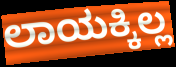
ಲಾಯಕ್ಕಿಲ್ಲ